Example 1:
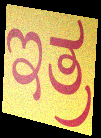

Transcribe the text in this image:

ಇತ್ರ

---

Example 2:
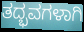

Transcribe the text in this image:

ತದ್ಭವಗಳಾಗಿ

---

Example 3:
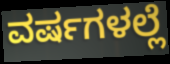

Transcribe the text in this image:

ವರ್ಷಗಳಲ್ಲೆ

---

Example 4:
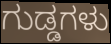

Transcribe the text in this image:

ಗುಡ್ಡಗಳು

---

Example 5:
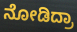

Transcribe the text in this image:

ನೋಡಿದ್ರಾ